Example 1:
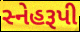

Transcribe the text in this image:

સ્નેહરૂપી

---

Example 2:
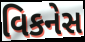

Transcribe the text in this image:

વિકનેસ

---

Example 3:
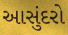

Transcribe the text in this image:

આસુંદરો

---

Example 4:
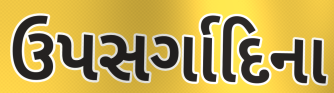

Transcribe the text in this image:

ઉપસર્ગાદિના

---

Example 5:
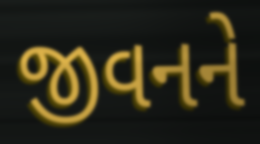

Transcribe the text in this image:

જીવનને